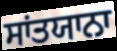
ਸਾਂਤਯਾਨਾ